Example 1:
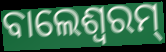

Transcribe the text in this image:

ବାଲେଶ୍ବରମ୍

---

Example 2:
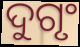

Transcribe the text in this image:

ଦୁଗୃଂ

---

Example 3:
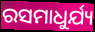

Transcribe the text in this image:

ରସମାଧୁର୍ଯ୍ୟ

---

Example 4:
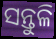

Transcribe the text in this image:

ସନ୍ତୁଳି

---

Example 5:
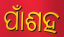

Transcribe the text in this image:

ପାଁଶହ